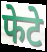
फेटे